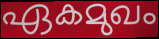
ഏകമുഖം